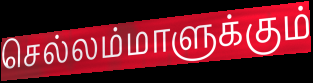
செல்லம்மாளுக்கும்